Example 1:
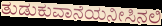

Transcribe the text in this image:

ತುಡುಕುವಾನೆಯನೀಸಿನಲಿ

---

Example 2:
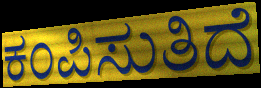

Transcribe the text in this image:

ಕಂಪಿಸುತಿದೆ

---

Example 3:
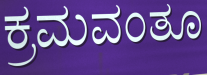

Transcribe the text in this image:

ಕ್ರಮವಂತೂ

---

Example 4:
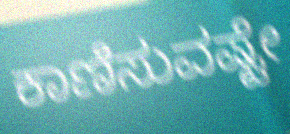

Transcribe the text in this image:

ಕಾಣಿಸುವಷ್ಟೇ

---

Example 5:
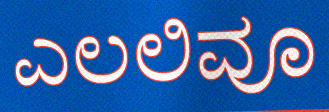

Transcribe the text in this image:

ಎಲಲಿವೂ